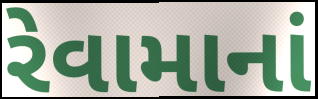
રેવામાનાં